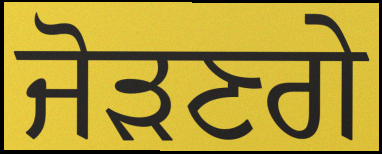
ਜੋੜਣਗੇ